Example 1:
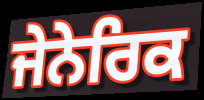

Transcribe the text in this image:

ਜੇਨੇਰਿਕ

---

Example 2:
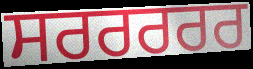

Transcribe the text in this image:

ਸਰਰਰਰਰ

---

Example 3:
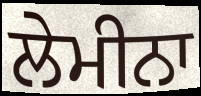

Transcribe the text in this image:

ਲੇਮੀਨਾ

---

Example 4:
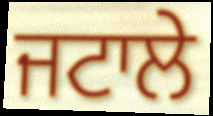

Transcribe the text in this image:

ਜਟਾਲੇ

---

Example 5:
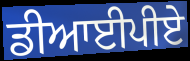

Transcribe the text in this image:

ਡੀਆਈਪੀਏ